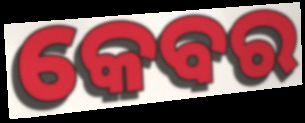
କେବର